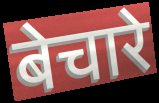
बेचारे